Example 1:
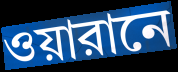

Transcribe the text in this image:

ওয়ারানে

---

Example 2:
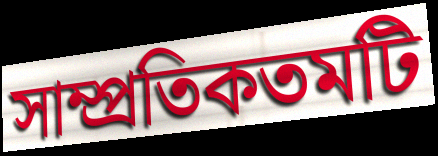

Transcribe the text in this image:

সাম্প্রতিকতমটি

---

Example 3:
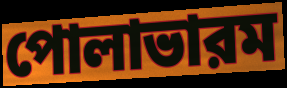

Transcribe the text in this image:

পোলাভারম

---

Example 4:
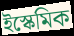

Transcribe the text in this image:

ইস্কেমিক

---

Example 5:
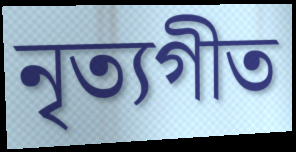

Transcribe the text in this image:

নৃত্যগীত